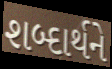
શબ્દાર્થને